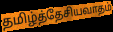
தமிழ்த்தேசியவாதம்